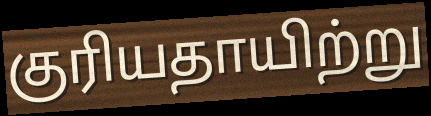
குரியதாயிற்று